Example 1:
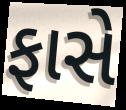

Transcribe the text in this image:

ફાસે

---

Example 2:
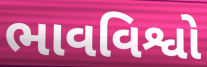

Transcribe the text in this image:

ભાવવિશ્વો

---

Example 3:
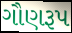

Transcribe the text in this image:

ગૌણરૂપ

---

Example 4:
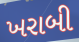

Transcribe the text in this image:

ખરાબી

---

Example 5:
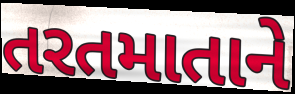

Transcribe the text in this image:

તરતમાતાને